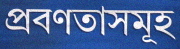
প্রবণতাসমূহ